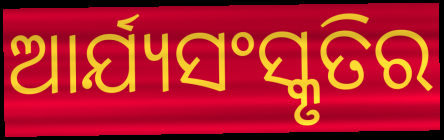
ଆର୍ଯ୍ୟସଂସ୍କୃତିର